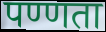
पण्णता